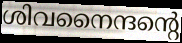
ശിവനൈന്ദന്റെ